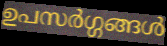
ഉപസർഗ്ഗങ്ങൾ